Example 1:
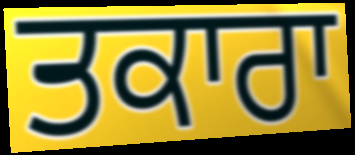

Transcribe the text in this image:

ਤਕਾਰਾ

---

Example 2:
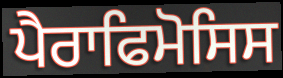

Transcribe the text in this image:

ਪੈਰਾਫਿਮੋਸਿਸ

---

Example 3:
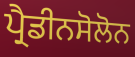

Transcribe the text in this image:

ਪ੍ਰੈਡੀਨਸੋਲੋਨ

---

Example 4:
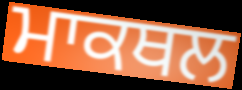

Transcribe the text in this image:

ਮਾਕਥਲ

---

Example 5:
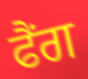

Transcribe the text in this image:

ਫੈਂਗ